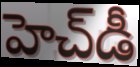
హెచ్‌డీ